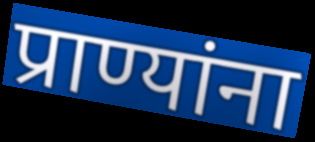
प्राण्यांना